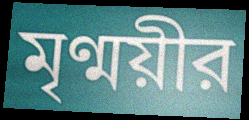
মৃণ্ময়ীর